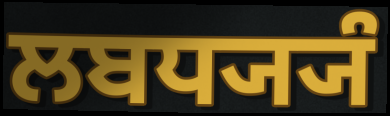
ਲਬਧ੍ਯ੍ਯੰ